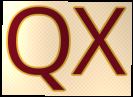
QX